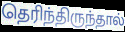
தெரிந்திருந்தால்